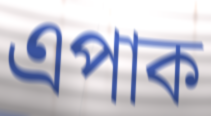
এপাক